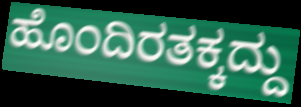
ಹೊಂದಿರತಕ್ಕದ್ದು